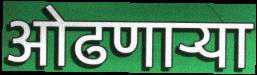
ओढणार्‍या